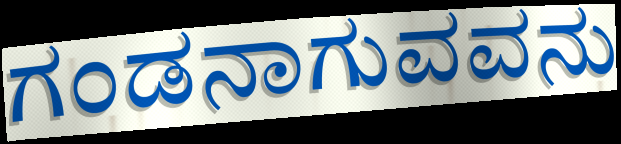
ಗಂಡನಾಗುವವನು